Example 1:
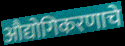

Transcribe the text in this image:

औद्योगिकरणाचे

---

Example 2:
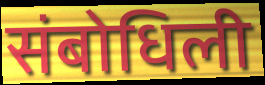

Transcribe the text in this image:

संबोधिली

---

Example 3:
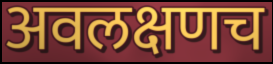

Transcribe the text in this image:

अवलक्षणच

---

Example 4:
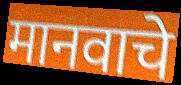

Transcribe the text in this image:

मानवाचे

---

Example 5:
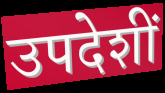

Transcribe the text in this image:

उपदेशीं